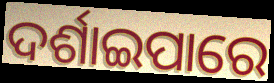
ଦର୍ଶାଇପାରେ